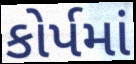
કોર્પમાં